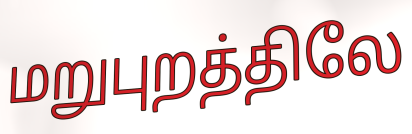
மறுபுறத்திலே